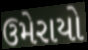
ઉમેરાયો